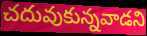
చదువుకున్నవాడని